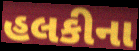
હલકીના